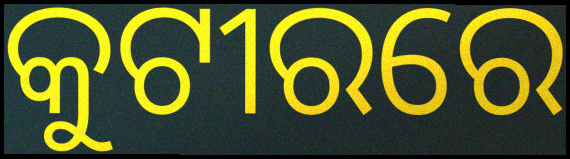
କୁଟୀରରେ